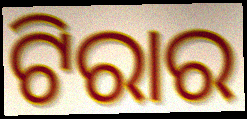
ଟିରାର